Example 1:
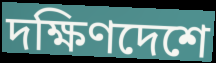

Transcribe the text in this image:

দক্ষিণদেশে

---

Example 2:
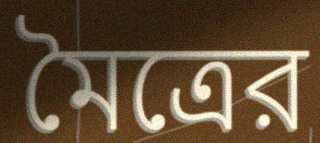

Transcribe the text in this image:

মৈত্রের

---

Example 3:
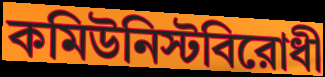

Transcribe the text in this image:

কমিউনিস্টবিরোধী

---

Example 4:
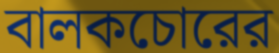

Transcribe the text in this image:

বালকচোরের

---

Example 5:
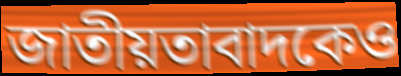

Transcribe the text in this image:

জাতীয়তাবাদকেও